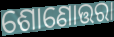
ଶୋଣୋତ୍ତରା